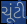
ચૂંટી